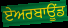
ਏਅਰਬਾਊਂਡ